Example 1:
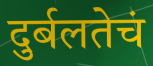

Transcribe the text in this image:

दुर्बलतेचं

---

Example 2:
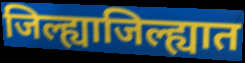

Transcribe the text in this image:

जिल्ह्याजिल्ह्यात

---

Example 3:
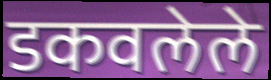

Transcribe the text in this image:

डकवलेले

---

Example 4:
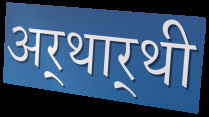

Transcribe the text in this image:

अर्थार्थी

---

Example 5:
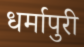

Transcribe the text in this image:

धर्मापुरी